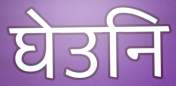
घेउनि